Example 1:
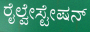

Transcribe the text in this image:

ರೈಲ್ವೇಸ್ಟೇಷನ್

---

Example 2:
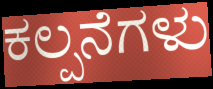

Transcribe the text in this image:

ಕಲ್ಪನೆಗಳು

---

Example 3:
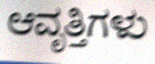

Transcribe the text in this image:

ಆವೃತ್ತಿಗಳು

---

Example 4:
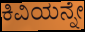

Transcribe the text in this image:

ಕಿವಿಯನ್ನೇ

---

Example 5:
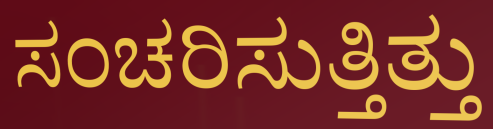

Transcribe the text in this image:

ಸಂಚರಿಸುತ್ತಿತ್ತು